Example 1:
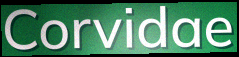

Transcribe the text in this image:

Corvidae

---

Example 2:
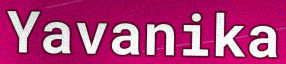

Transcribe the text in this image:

Yavanika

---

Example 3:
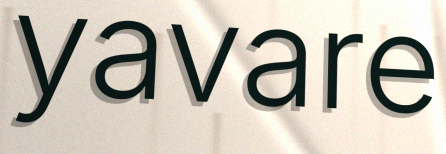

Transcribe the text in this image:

yavare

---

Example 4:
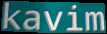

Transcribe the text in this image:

kavim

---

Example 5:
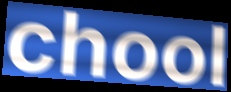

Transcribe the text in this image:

chool